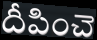
దీపించె